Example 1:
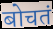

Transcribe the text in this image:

बोचतं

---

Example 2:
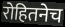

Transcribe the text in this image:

रोहितनेच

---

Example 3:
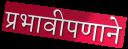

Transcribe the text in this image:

प्रभावीपणाने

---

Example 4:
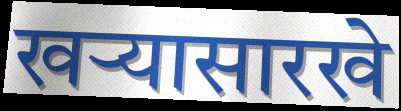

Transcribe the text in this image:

खऱ्यासारखे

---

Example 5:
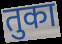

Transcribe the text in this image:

तुका